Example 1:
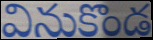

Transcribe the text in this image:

వినుకొండ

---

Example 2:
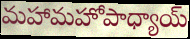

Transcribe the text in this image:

మహామహోపాధ్యాయ్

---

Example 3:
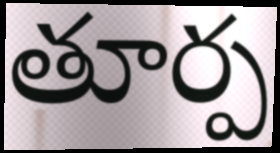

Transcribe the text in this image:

తూర్ప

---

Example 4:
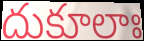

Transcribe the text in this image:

దుకూలాః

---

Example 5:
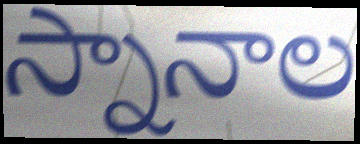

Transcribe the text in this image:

స్నానాల